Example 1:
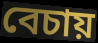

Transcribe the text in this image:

বেচায়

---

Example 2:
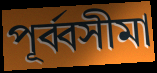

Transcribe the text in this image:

পূর্ব্বসীমা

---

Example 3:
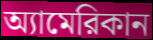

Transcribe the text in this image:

অ্যামেরিকান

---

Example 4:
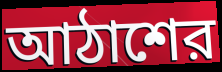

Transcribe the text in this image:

আঠাশের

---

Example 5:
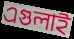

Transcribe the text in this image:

এগুলাই